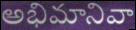
అభిమానివా